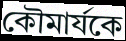
কৌমার্যকে